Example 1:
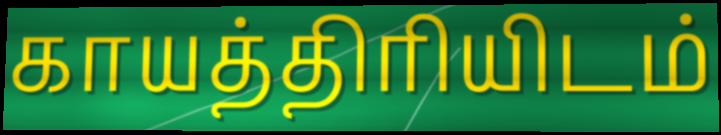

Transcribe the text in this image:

காயத்திரியிடம்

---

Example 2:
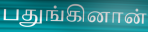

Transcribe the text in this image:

பதுங்கினான்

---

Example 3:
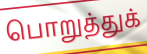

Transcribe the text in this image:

பொறுத்துக்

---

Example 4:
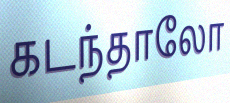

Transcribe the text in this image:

கடந்தாலோ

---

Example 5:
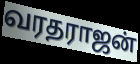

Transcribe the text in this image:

வரதராஜன்